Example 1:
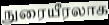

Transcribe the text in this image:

நுரையீரலாக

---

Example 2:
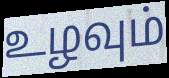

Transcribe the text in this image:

உழவும்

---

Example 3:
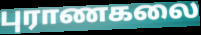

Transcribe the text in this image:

புராணகலை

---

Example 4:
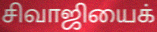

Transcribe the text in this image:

சிவாஜியைக்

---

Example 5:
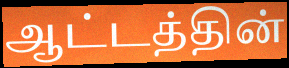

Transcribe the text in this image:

ஆட்டத்தின்